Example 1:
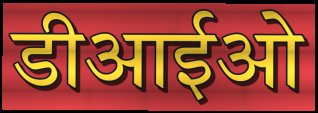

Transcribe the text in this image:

डीआईओ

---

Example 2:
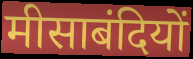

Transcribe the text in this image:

मीसाबंदियों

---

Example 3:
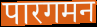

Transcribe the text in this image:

पारगमन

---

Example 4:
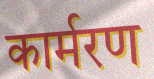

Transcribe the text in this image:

कार्मरण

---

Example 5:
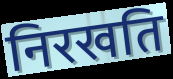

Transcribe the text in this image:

निरखति